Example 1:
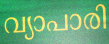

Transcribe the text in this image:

വ്യാപാരി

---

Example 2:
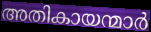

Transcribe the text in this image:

അതികായന്മാർ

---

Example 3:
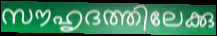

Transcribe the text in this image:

സൗഹൃദത്തിലേക്കു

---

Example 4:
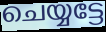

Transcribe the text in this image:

ചെയ്യട്ടേ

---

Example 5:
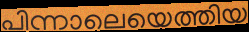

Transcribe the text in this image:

പിന്നാലെയെത്തിയ